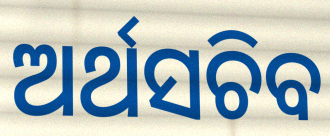
ଅର୍ଥସଚିବ